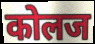
कोलज